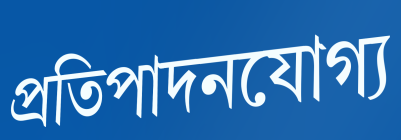
প্রতিপাদনযোগ্য